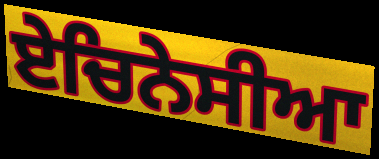
ਏਚਿਨੇਸੀਆ